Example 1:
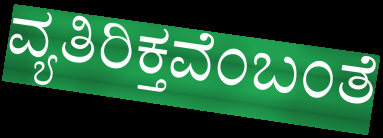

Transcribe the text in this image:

ವ್ಯತಿರಿಕ್ತವೆಂಬಂತೆ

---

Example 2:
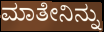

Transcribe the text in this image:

ಮಾತೇನಿನ್ನು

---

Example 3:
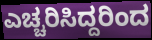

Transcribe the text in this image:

ಎಚ್ಚರಿಸಿದ್ದರಿಂದ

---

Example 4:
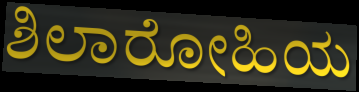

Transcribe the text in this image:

ಶಿಲಾರೋಹಿಯ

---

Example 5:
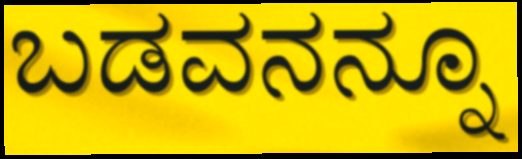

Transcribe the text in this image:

ಬಡವನನ್ನೂ